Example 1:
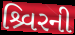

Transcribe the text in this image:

શ્ર્વિરની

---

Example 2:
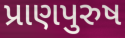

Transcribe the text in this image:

પ્રાણપુરુષ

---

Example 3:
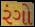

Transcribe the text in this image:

રંગો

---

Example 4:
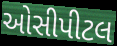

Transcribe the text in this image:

ઓસીપીટલ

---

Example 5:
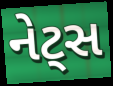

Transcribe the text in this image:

નેટ્સ